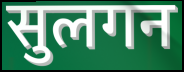
सुलगन